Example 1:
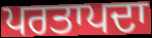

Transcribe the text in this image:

ਪਰਤਾਪਦਾ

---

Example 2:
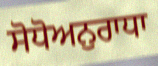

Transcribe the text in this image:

ਸੋਧੋਅਨੁਰਾਧਾ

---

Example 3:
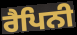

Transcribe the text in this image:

ਰੈਪਿਨੀ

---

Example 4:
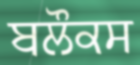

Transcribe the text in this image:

ਬਲੌਕਸ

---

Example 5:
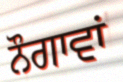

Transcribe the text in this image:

ਨੌਗਾਵਾਂ